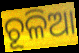
ଚୂଳିଆ